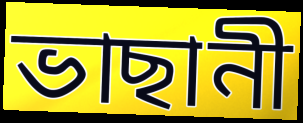
ভাছানী